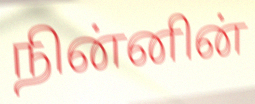
நின்னின்